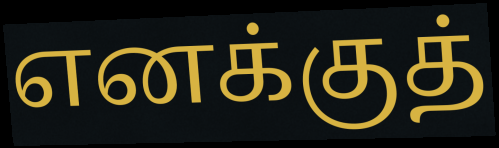
எனக்குத்